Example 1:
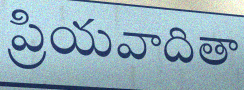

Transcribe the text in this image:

ప్రియవాదితా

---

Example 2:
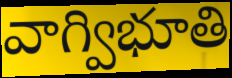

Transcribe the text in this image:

వాగ్విభూతి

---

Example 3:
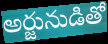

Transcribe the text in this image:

అర్జునుడితో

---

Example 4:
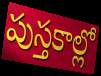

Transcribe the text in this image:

పుస్తకాల్లో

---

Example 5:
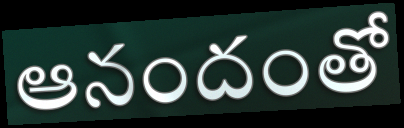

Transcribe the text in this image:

ఆనందంతో